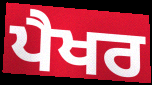
ਪੈਖਰ